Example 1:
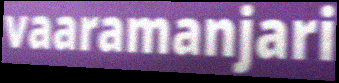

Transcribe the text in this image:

vaaramanjari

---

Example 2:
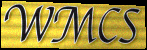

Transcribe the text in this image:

WMCS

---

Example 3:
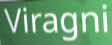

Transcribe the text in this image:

Viragni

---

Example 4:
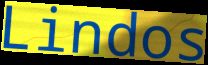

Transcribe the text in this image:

Lindos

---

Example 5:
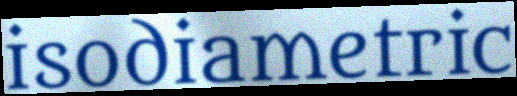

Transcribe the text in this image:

isodiametric